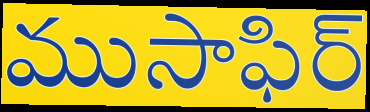
ముసాఫిర్